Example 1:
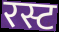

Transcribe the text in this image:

रस्ट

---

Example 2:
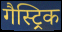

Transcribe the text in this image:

गैस्ट्रिक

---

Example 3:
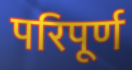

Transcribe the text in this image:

परिपूर्ण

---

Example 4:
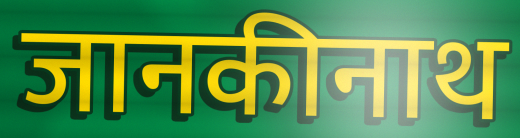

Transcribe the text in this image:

जानकीनाथ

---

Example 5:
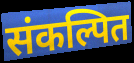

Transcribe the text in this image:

संकल्पित